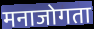
मनाजोगता